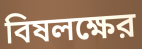
বিষলক্ষের